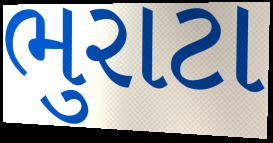
ભુરાટા